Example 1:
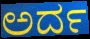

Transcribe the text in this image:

ಅರ್ದ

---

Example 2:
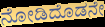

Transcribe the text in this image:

ನೋಡಿದೊಡನೇ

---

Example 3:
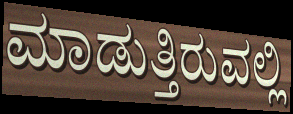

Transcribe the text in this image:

ಮಾಡುತ್ತಿರುವಲ್ಲಿ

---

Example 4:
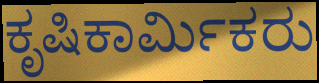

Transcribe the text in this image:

ಕೃಷಿಕಾರ್ಮಿಕರು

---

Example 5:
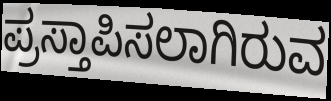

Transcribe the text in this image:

ಪ್ರಸ್ತಾಪಿಸಲಾಗಿರುವ